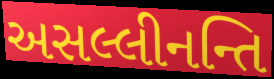
અસલ્લીનન્તિ